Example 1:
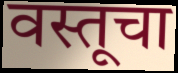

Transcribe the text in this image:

वस्तूचा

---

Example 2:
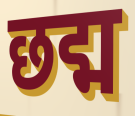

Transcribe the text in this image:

छद्म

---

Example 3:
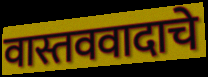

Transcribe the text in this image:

वास्तववादाचे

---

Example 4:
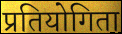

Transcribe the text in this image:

प्रतियोगिता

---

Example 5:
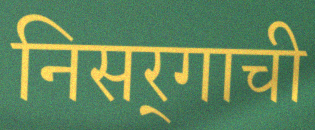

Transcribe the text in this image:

निसर्गाची